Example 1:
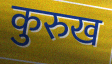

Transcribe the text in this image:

कुरुख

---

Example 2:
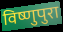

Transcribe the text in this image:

विष्णुपुरा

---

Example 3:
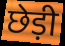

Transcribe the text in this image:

छेड़ी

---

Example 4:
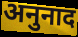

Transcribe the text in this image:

अनुनाद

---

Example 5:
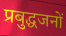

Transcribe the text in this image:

प्रबुद्धजनों